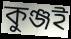
কুঞ্জই